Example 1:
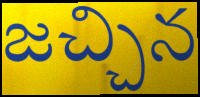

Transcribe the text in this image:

జచ్చిన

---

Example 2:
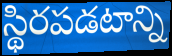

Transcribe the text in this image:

స్థిరపడటాన్ని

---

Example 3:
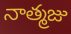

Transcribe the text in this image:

నాత్మజు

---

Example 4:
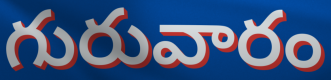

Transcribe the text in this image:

గురువారం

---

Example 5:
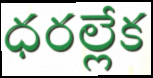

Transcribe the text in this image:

ధరల్లేక